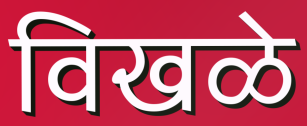
विखळे